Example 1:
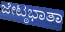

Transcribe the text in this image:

ಜೇಟ್ಠಭಾತಾ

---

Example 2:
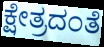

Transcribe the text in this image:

ಕ್ಷೇತ್ರದಂತೆ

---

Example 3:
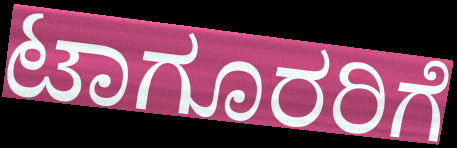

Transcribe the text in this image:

ಟಾಗೂರರಿಗೆ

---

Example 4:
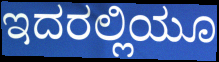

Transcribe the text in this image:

ಇದರಲ್ಲಿಯೂ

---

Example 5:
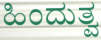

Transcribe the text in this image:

ಹಿಂದುತ್ವ